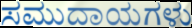
ಸಮುದಾಯಗಳು